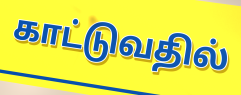
காட்டுவதில்